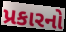
પ્રકારનો